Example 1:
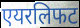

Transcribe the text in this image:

एयरलिफट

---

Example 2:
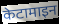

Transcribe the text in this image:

केटामाइन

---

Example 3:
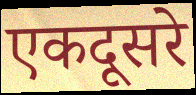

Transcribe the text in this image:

एकदूसरे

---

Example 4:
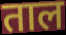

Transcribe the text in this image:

ताल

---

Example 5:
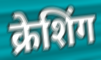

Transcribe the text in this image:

क्रेशिंग